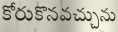
కోరుకొనవచ్చును